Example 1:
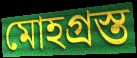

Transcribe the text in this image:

মোহগ্রস্ত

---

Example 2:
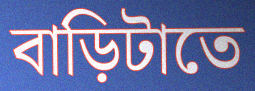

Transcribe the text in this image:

বাড়িটাতে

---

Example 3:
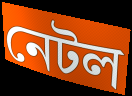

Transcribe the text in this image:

নেটল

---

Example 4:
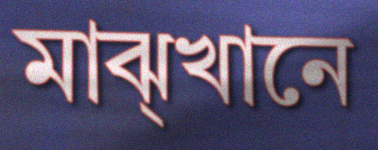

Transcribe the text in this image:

মাঝ্খানে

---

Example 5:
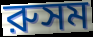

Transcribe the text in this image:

রুসম